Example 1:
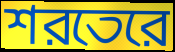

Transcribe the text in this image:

শরতেরে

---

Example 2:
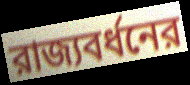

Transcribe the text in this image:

রাজ্যবর্ধনের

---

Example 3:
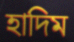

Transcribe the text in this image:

হাদিম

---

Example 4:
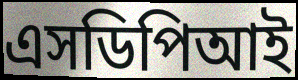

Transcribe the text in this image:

এসডিপিআই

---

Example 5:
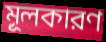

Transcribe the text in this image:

মূলকারণ